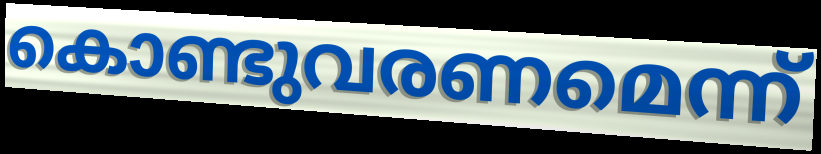
കൊണ്ടുവരണമെന്ന്